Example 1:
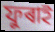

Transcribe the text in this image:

ফুৰাই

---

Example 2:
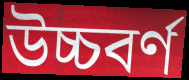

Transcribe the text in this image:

উচ্চবৰ্ণ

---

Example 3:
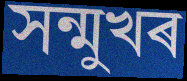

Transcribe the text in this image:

সন্মুখৰ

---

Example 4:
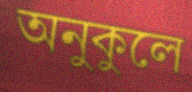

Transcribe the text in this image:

অনুকুলে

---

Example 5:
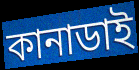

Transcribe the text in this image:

কানাডাই